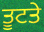
ਤੂਟਤੇ